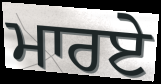
ਮਾਰਏ